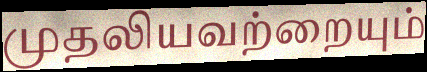
முதலியவற்றையும்